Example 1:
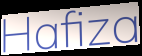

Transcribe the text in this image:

Hafiza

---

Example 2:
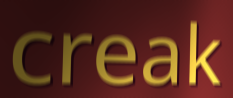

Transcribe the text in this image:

creak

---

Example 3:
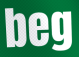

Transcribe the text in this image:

beg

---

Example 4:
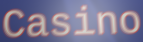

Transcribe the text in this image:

Casino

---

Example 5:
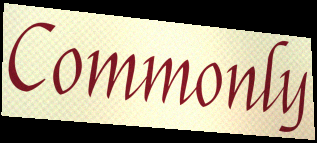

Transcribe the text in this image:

Commonly